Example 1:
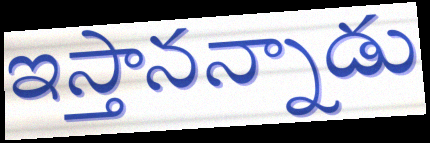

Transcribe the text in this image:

ఇస్తానన్నాడు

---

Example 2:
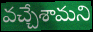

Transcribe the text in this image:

వచ్చేశామని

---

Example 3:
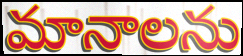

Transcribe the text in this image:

మానాలను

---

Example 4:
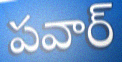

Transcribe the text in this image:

పవార్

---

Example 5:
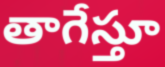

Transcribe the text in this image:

తాగేస్తూ